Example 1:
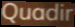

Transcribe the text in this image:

Quadir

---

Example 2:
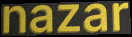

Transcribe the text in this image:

nazar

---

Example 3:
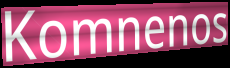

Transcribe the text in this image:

Komnenos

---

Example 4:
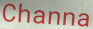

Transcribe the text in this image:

Channa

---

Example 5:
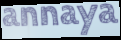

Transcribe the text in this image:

annaya